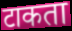
टाकता